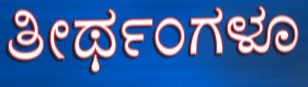
ತೀರ್ಥಂಗಳೂ